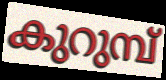
കുറുമ്പ്